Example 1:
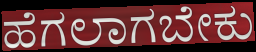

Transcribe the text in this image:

ಹೆಗಲಾಗಬೇಕು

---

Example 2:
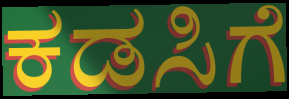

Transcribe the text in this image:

ಕಡಸಿಗೆ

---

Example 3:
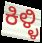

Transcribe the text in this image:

ಕಿಳ್ಳಿ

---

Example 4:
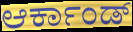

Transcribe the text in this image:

ಆರ್ಕಾಂಡ್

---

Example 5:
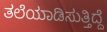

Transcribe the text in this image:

ತಲೆಯಾಡಿಸುತ್ತಿದ್ದೆ